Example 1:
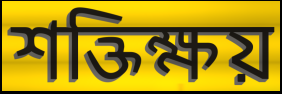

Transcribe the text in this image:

শক্তিক্ষয়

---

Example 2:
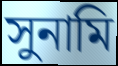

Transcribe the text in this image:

সুনামি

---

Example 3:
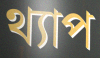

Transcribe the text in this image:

থ্যাপ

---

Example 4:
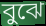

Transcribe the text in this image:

বুঝে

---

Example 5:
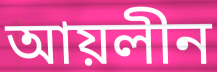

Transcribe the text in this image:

আয়লীন